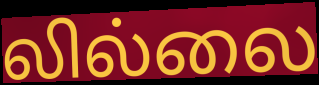
லில்லை